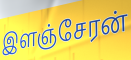
இளஞ்சேரன்